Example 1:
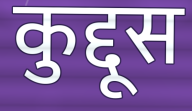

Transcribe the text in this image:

कुद्दूस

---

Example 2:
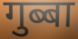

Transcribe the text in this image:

गुब्बा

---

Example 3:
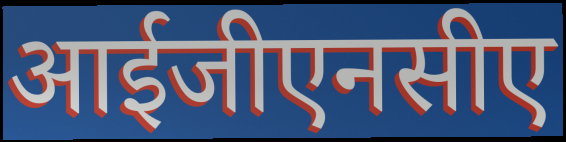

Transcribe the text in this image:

आईजीएनसीए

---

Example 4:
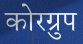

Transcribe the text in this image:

कोरग्रुप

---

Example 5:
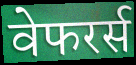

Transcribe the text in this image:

वेफरर्स